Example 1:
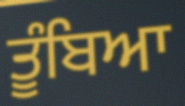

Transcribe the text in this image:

ਤੂੰਬਿਆ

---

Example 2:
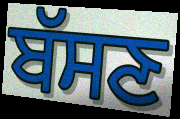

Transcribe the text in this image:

ਬੱਸਣ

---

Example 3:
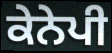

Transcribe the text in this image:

ਕੇਨੇਪੀ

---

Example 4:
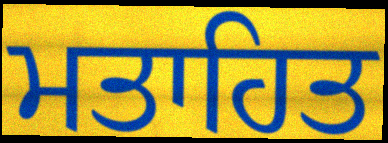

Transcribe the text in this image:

ਮਤਾਹਿਤ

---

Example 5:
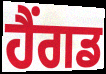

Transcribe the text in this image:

ਹੈਂਗਡ